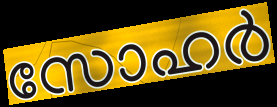
സോഹർ